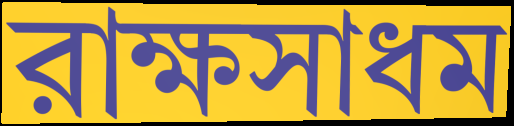
রাক্ষসাধম